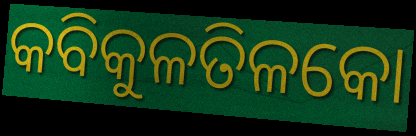
କବିକୁଳତିଳକୋ